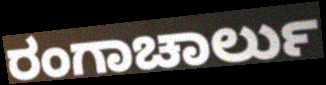
ರಂಗಾಚಾರ್ಲು